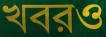
খবরও